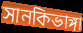
সানকিভাঙ্গা